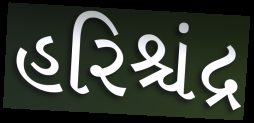
હરિશ્ચંદ્ર